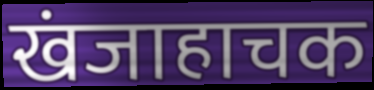
खंजाहाचक